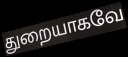
துறையாகவே